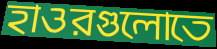
হাওরগুলোতে